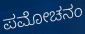
ಪಮೋಚನಂ